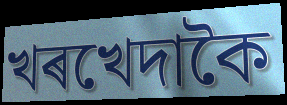
খৰখেদাকৈ